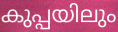
കുപ്പയിലും